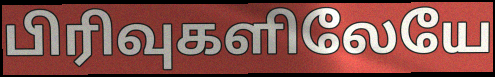
பிரிவுகளிலேயே